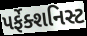
પર્ફેક્શનિસ્ટ